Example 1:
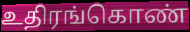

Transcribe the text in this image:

உதிரங்கொண்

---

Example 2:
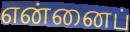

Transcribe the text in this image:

என்னைப்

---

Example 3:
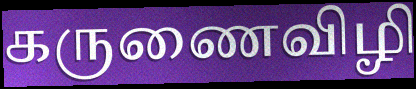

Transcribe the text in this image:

கருணைவிழி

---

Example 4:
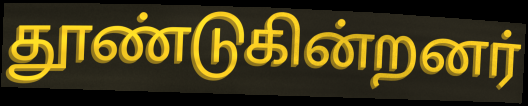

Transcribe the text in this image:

தூண்டுகின்றனர்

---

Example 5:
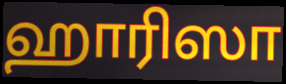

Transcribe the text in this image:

ஹாரிஸா